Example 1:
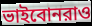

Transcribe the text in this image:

ভাইবোনরাও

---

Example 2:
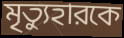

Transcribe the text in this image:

মৃত্যুহারকে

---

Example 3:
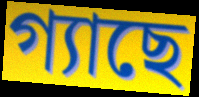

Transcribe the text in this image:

গ্যাছে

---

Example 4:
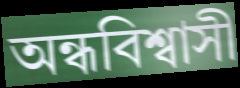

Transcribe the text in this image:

অন্ধবিশ্বাসী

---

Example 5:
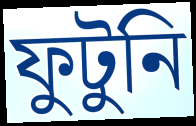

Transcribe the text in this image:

ফুটুনি